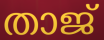
താജ്